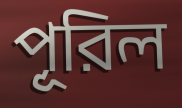
পূরিল